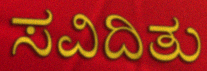
ಸವಿದಿತು